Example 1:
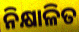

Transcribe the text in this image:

ନିକ୍ଷାଳିତ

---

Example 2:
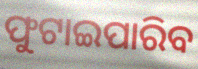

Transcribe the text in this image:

ଫୁଟାଇପାରିବ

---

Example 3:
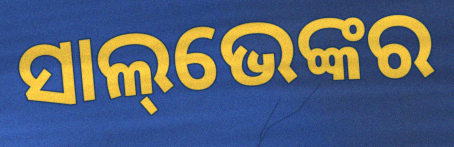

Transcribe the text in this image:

ସାଲ୍‌ଭେଙ୍କର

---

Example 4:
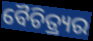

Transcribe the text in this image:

ବୈଚିତ୍ର୍ୟର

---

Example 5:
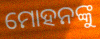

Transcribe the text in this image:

ମୋହନଙ୍କୁ